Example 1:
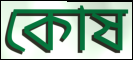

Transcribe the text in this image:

কোষ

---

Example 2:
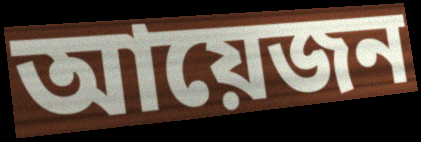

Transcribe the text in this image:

আয়েজন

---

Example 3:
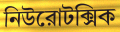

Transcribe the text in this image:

নিউরোটক্সিক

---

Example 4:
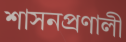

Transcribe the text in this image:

শাসনপ্রণালী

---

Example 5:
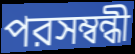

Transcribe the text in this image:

পরসম্বন্ধী